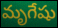
మృగేషు